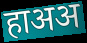
हाअअ